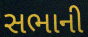
સભાની